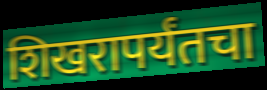
शिखरापर्यंतचा